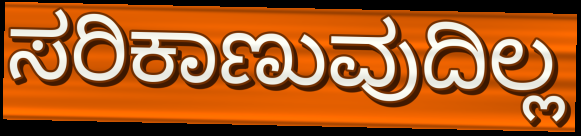
ಸರಿಕಾಣುವುದಿಲ್ಲ